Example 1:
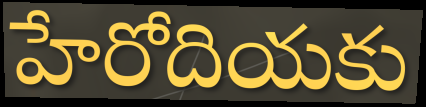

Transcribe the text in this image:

హేరోదియకు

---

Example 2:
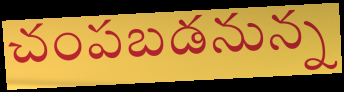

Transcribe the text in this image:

చంపబడనున్న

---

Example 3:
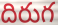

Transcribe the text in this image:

దిరుగ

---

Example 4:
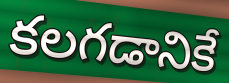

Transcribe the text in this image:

కలగడానికే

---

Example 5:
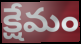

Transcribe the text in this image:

క్షేమం